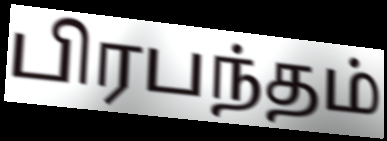
பிரபந்தம்